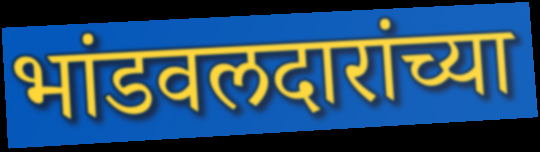
भांडवलदारांच्या